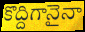
కొద్దిగానైనా